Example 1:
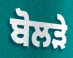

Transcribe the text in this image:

ਬੋਲੜੇ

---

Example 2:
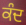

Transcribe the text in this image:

ਕੰਦ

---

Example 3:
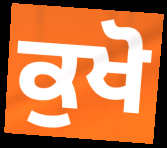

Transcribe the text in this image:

ਕੁਖੋ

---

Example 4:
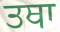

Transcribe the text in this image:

ਤਥਾ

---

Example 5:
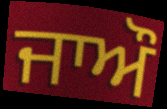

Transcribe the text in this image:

ਜਾਔ